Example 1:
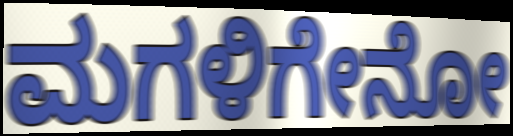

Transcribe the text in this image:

ಮಗಳಿಗೇನೋ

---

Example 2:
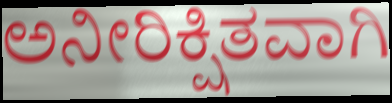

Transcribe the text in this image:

ಅನೀರಿಕ್ಷಿತವಾಗಿ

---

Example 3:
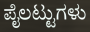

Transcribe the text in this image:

ಪೈಲಟ್ಟುಗಳು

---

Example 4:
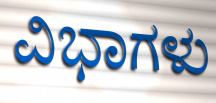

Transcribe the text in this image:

ವಿಭಾಗಳು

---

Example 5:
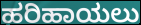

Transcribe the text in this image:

ಹರಿಹಾಯಲು